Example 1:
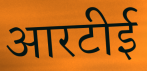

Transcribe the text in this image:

आरटीई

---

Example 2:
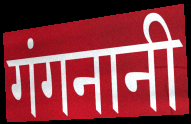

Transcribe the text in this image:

गंगनानी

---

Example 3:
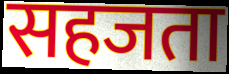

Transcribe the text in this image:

सहजता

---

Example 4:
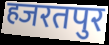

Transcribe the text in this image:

हजरतपुर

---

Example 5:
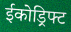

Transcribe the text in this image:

ईकोड्रिफ्ट